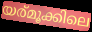
യര്മൂക്കിലെ